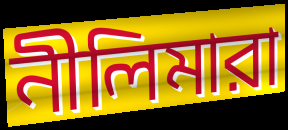
নীলিমারা